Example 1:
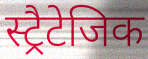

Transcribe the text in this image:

स्ट्रैटेजिक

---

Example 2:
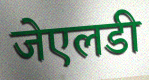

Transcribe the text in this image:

जेएलडी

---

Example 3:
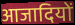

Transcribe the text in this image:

आजादियों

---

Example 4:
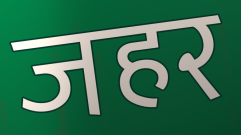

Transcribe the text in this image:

जहर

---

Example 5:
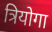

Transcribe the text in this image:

त्रियोगा